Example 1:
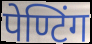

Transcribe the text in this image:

पेण्टिंग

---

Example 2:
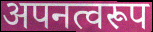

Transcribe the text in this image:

अपनत्वरूप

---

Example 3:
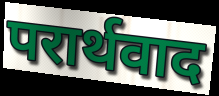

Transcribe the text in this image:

परार्थवाद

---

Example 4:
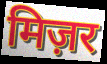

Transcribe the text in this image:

मिज़र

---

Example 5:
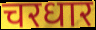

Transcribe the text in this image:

चरधार